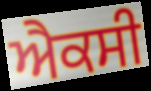
ਐਕਸੀ